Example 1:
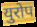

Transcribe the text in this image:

युरोप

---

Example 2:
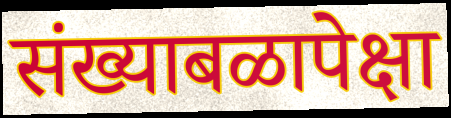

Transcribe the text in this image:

संख्याबळापेक्षा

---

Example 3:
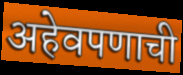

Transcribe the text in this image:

अहेवपणाची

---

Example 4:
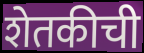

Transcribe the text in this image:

शेतकीची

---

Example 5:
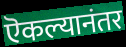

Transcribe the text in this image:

ऎकल्यानंतर